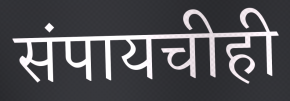
संपायचीही